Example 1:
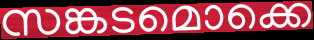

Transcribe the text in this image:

സങ്കടമൊക്കെ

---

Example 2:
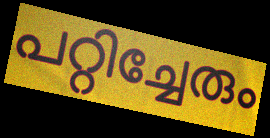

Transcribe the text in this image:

പറ്റിച്ചേരും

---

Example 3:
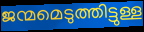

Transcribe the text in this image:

ജന്മമെടുത്തിട്ടുള്ള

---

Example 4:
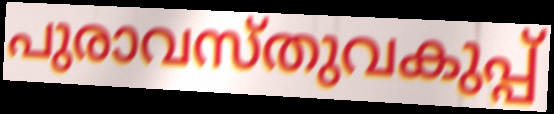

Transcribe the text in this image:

പുരാവസ്തുവകുപ്പ്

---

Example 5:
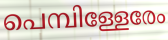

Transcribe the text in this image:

പെമ്പിള്ളേരേം